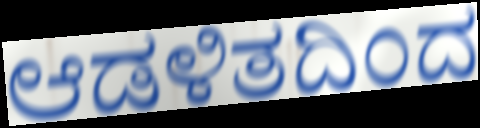
ಆಡಳಿತದಿಂದ